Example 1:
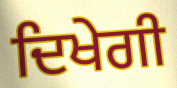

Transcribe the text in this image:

ਦਿਖੇਗੀ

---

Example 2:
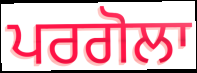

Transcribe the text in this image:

ਪਰਗੋਲਾ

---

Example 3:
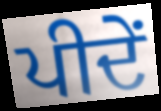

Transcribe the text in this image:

ਪੀਦੇਂ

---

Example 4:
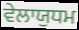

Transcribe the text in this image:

ਵੇਲਾਯੁਧਮ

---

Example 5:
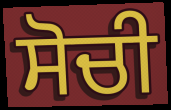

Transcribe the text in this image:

ਸੋਚੀ